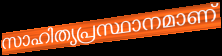
സാഹിത്യപ്രസ്ഥാനമാണ്